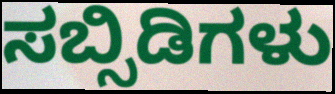
ಸಬ್ಸಿಡಿಗಳು